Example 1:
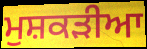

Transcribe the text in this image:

ਮੁਸ਼ਕੜੀਆ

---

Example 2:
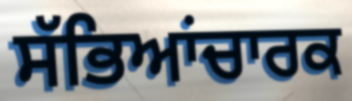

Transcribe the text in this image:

ਸੱਭਿਆਂਚਾਰਕ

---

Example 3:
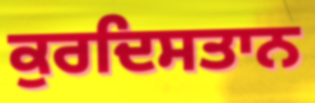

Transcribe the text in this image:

ਕੁਰਦਿਸਤਾਨ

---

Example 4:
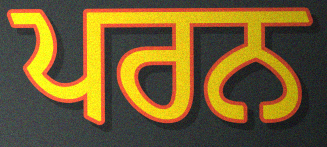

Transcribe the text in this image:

ਪਰਨ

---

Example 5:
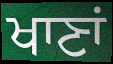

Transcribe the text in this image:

ਖਾਣਾਂ